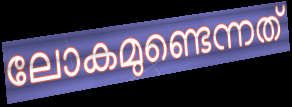
ലോകമുണ്ടെന്നത്